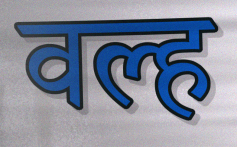
वल्ह